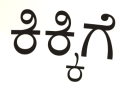
ಕಿಕ್ಕಿಗೆ